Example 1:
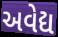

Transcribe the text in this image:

અવેદ્ય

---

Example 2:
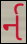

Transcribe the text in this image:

ર્ન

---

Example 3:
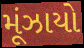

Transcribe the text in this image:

મૂંઝાયો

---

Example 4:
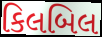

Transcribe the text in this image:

કિલબિલ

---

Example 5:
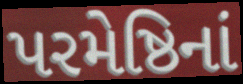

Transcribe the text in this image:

પરમેષ્ઠિનાં